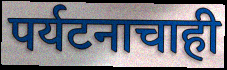
पर्यटनाचाही